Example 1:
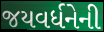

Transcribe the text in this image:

જયવર્ધનેની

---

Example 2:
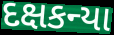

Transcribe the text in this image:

દક્ષકન્યા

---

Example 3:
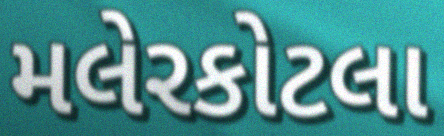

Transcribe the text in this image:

મલેરકોટલા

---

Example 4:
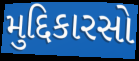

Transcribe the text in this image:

મુદ્દિકારસો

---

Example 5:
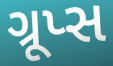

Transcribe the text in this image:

ગ્રૂપ્સ